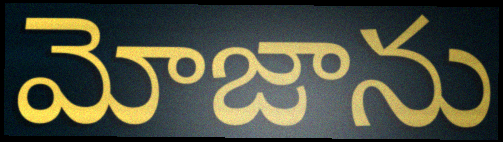
మోజాను